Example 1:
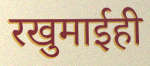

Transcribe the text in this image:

रखुमाईही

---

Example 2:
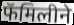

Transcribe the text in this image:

फॅमिलीने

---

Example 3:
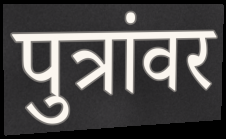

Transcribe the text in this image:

पुत्रांवर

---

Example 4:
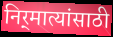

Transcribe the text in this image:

निर्मात्यांसाठी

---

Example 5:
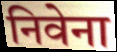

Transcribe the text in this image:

निवेना